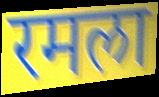
रमला